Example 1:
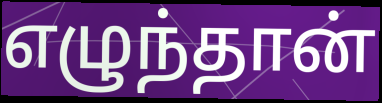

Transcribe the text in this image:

எழுந்தான்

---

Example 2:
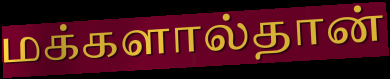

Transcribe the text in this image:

மக்களால்தான்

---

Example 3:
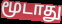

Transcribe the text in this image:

மூடாது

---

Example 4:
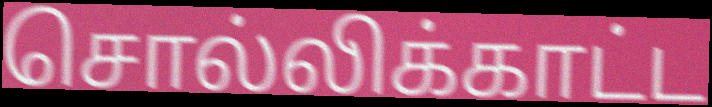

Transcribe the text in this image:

சொல்லிக்காட்ட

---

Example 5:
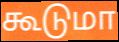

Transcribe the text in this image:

கூடுமா